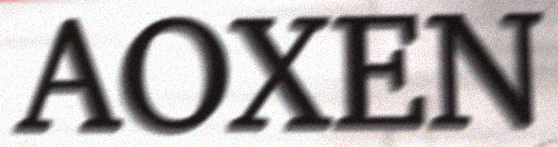
AOXEN